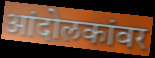
आंदोलकांवर